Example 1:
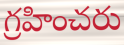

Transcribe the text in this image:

గ్రహించరు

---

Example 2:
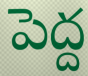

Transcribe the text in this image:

పెద్ద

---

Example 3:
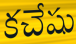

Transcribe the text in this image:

కచేషు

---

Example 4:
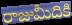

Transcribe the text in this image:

రాజుమీదికి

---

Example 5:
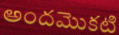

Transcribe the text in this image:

అందమొకటి